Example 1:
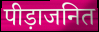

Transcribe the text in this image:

पीड़ाजनित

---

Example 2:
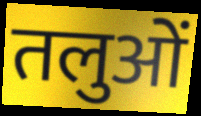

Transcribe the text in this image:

तलुओं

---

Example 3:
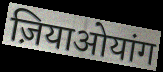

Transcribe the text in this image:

ज़ियाओयांग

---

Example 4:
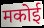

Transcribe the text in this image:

मकोई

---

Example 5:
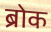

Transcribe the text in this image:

ब्रोक